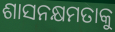
ଶାସନକ୍ଷମତାକୁ